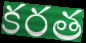
కరత